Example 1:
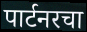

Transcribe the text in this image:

पार्टनरचा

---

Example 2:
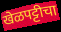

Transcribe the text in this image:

खेळपट्टीचा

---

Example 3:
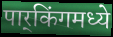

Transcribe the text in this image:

पार्किंगमध्ये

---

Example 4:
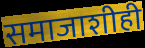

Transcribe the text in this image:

समाजाशीही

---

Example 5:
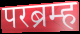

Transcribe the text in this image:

परब्रम्ह